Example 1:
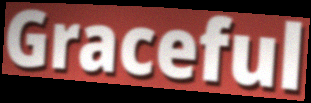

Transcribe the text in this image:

Graceful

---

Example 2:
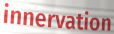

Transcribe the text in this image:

innervation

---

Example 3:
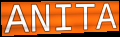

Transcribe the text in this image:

ANITA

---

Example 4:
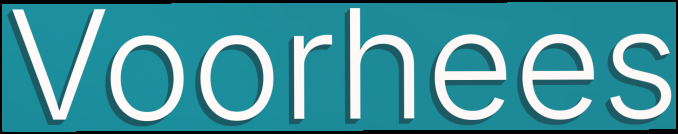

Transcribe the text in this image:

Voorhees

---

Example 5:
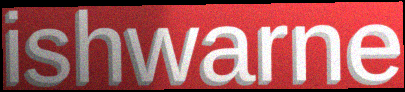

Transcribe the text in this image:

ishwarne